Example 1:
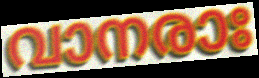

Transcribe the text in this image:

വാനരാഃ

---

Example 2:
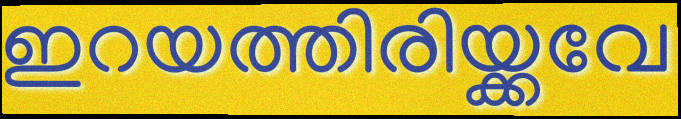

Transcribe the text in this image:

ഇറയത്തിരിയ്ക്കവേ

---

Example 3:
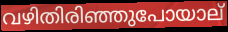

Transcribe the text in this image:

വഴിതിരിഞ്ഞുപോയാല്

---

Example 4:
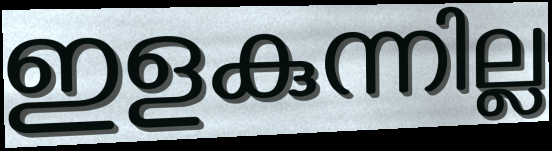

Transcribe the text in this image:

ഇളകുന്നില്ല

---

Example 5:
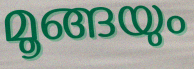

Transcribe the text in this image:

മൂങ്ങയും